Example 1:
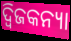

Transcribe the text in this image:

ଦ୍ୱିଜକନ୍ୟା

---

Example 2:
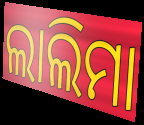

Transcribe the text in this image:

ଲାଲିମା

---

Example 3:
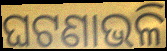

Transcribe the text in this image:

ଘଟଣାଭଳି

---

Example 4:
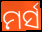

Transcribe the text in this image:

ମର୍ସ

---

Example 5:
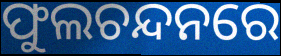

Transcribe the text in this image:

ଫୁଲଚନ୍ଦନରେ